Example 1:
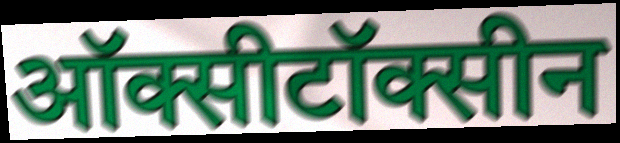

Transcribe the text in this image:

ऑक्सीटॉक्सीन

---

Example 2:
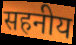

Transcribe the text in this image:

सहनीय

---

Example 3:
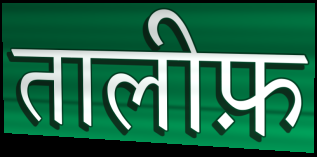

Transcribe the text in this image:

तालीफ़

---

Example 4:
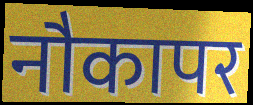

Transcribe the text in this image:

नौकापर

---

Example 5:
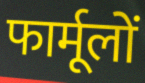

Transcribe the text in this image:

फार्मूलों